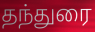
தந்துரை